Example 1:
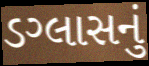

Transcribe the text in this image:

ડગ્લાસનું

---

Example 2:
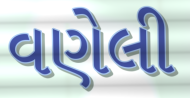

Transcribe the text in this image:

વણેલી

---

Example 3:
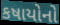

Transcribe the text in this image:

કષાયોનો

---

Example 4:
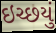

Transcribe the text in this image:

ઇચ્છયું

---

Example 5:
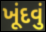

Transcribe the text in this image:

ખૂંદવું